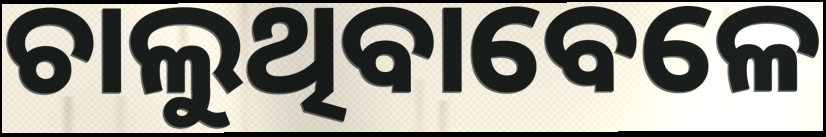
ଚାଲୁଥିବାବେଳେ